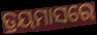
ତ୍ରୟମାସରେ